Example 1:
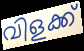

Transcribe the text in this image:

വിളക്ക്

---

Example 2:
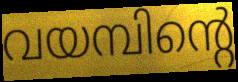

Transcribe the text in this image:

വയമ്പിന്റെ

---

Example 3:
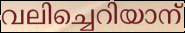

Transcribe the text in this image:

വലിച്ചെറിയാന്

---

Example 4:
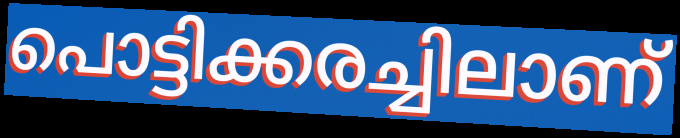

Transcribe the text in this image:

പൊട്ടിക്കരച്ചിലാണ്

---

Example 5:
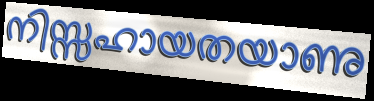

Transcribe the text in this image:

നിസ്സഹായതയാണു